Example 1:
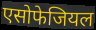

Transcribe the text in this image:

एसोफेजियल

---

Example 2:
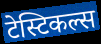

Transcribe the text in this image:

टेस्टिकल्स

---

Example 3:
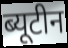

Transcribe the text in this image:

ब्यूटीन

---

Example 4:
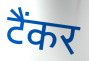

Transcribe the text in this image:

टैंकर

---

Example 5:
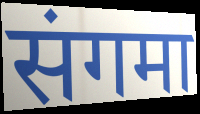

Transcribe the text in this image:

संगमा